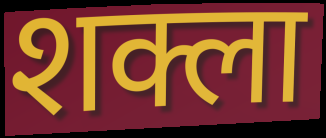
शक्ला